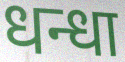
धन्धा